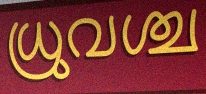
ധ്രുവശ്ച